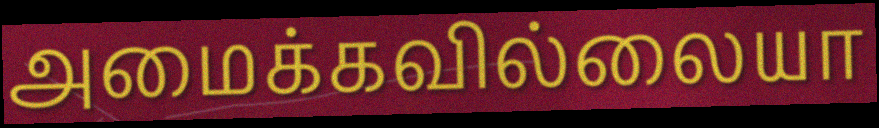
அமைக்கவில்லையா